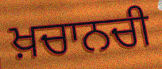
ਖ਼ਚਾਨਚੀ